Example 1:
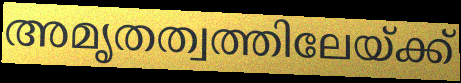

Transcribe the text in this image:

അമൃതത്വത്തിലേയ്ക്ക്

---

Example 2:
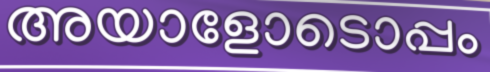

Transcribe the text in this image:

അയാളോടൊപ്പം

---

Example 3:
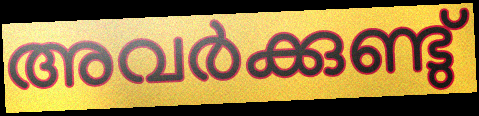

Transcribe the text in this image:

അവർക്കുണ്ടു്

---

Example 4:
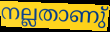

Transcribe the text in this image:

നല്ലതാണു്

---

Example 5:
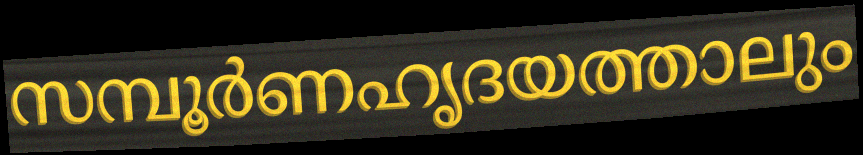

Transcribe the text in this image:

സമ്പൂർണഹൃദയത്താലും